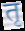
तृ